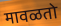
मावळतो